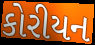
કોરીયન